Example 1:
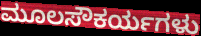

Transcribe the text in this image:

ಮೂಲಸೌಕರ್ಯಗಳು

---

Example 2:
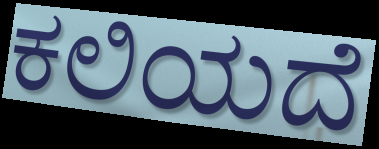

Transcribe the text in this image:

ಕಲಿಯದೆ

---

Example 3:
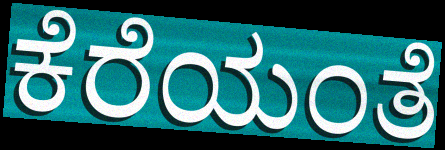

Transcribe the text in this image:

ಕೆರೆಯಂತೆ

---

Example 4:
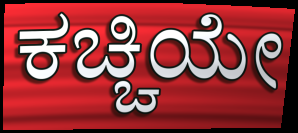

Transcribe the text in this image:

ಕಚ್ಚಿಯೇ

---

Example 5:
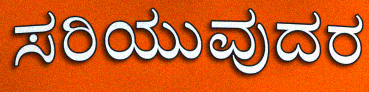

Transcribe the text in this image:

ಸರಿಯುವುದರ